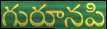
గురూనపి